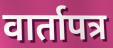
वार्तापत्र